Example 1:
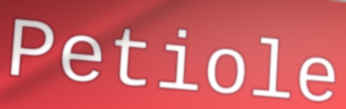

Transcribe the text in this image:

Petiole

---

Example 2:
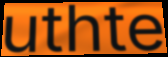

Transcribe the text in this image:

uthte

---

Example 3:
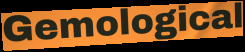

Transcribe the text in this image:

Gemological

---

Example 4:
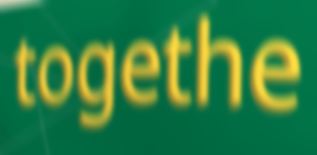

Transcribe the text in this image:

togethe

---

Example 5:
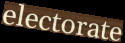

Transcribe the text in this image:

electorate